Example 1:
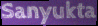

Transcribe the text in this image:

Sanyukta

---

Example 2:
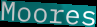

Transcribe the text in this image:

Moores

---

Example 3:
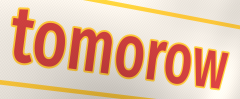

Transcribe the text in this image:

tomorow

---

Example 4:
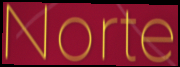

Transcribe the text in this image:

Norte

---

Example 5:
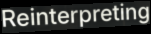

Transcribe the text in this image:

Reinterpreting